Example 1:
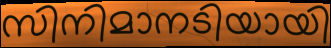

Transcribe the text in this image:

സിനിമാനടിയായി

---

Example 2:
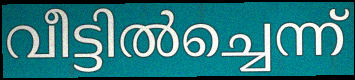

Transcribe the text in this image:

വീട്ടിൽച്ചെന്ന്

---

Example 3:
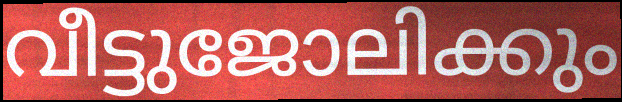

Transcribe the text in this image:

വീട്ടുജോലിക്കും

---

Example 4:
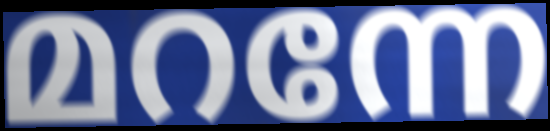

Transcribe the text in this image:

മറന്നേ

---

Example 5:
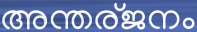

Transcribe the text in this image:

അന്തര്ജനം